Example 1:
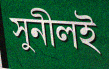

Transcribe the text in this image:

সুনীলই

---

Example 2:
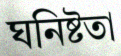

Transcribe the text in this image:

ঘনিষ্টতা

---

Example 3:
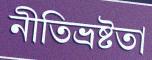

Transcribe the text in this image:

নীতিভ্রষ্টতা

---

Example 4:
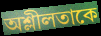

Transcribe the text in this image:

অশ্লীলতাকে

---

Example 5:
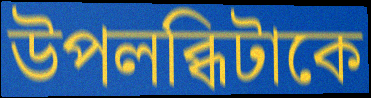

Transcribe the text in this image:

উপলব্ধিটাকে